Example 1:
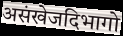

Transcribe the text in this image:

असंखेजदिभागो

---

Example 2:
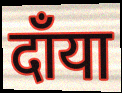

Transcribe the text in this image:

दाँया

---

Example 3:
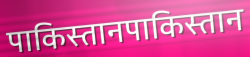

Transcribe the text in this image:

पाकिस्तानपाकिस्तान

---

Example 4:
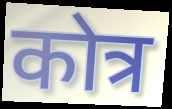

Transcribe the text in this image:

कोत्र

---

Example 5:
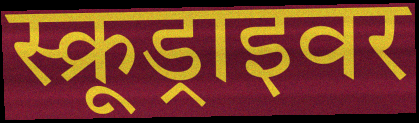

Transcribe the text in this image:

स्क्रूड्राइवर